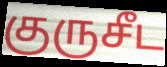
குருசீட